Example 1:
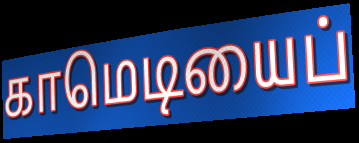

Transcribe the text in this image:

காமெடியைப்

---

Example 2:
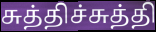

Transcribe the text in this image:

சுத்திச்சுத்தி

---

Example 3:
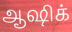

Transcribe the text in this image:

ஆஷிக்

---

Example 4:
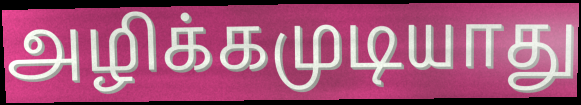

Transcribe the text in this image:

அழிக்கமுடியாது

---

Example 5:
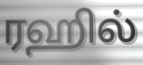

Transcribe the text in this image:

ரஹில்